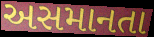
અસમાનતા